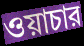
ওয়াচার